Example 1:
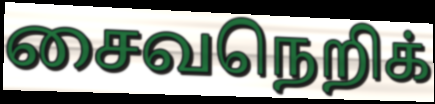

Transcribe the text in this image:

சைவநெறிக்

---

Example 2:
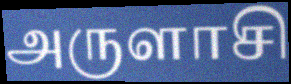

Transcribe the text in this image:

அருளாசி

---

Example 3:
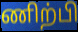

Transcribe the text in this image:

ணிற்பி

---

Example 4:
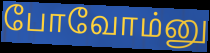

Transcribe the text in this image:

போவோம்னு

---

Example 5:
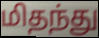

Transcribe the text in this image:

மிதந்து